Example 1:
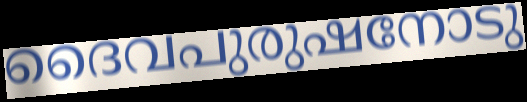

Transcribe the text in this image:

ദൈവപുരുഷനോടു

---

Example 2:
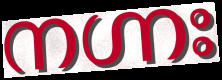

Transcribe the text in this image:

നഗ്നഃ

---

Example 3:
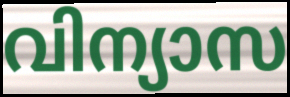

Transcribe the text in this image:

വിന്യാസ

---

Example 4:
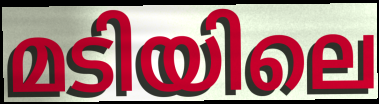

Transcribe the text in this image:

മടിയിലെ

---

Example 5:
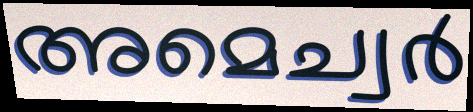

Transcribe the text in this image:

അമെച്വർ